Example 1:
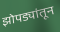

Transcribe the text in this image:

झोपड्यांतून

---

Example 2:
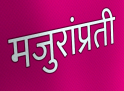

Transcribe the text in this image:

मजुरांप्रती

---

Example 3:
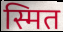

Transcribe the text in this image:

स्मित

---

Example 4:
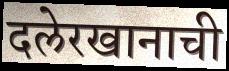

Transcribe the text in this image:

दलेरखानाची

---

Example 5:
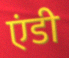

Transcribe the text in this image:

एंडी